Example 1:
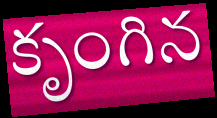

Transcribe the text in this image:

కృంగిన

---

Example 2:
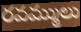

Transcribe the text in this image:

రవమ్ములు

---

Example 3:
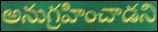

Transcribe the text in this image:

అనుగ్రహించాడని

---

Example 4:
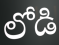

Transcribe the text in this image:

లోడి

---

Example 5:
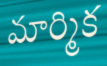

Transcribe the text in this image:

మార్మిక